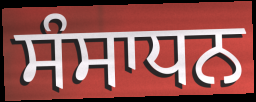
ਸੰਸਾਧਨ